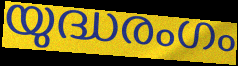
യുദ്ധരംഗം